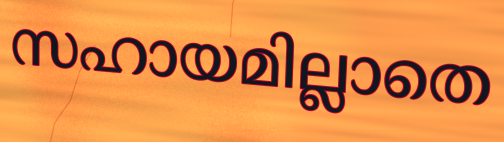
സഹായമില്ലാതെ